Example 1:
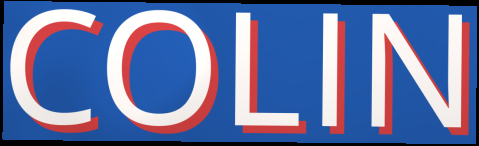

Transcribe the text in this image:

COLIN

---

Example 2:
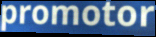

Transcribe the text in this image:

promotor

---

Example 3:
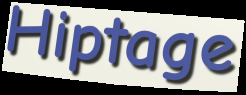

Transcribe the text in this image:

Hiptage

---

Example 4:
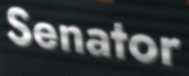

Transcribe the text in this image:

Senator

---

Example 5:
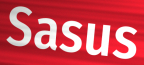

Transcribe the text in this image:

Sasus